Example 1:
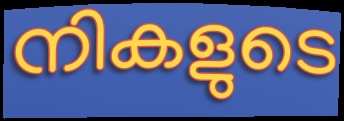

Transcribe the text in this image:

നികളുടെ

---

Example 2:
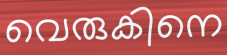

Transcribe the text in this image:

വെരുകിനെ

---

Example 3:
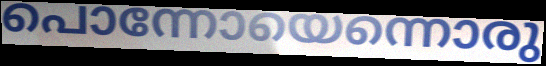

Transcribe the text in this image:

പൊന്നോയെന്നൊരു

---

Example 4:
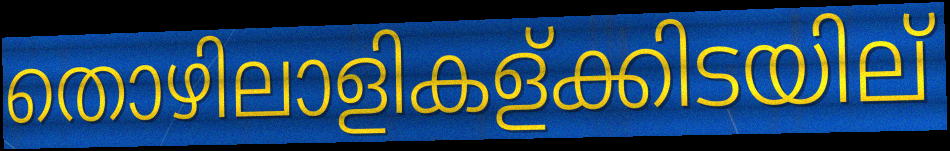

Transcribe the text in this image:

തൊഴിലാളികള്ക്കിടയില്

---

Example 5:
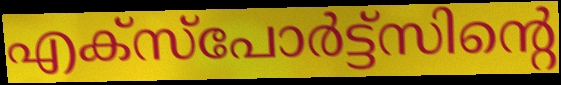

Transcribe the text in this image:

എക്സ്പോർട്ട്സിന്റെ